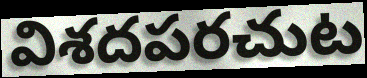
విశదపరచుట